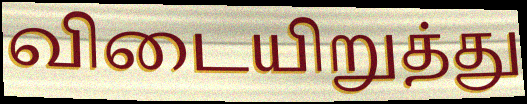
விடையிறுத்து